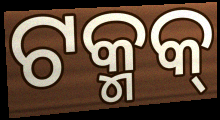
ଟକ୍ମକ୍